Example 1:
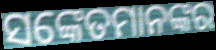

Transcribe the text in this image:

ସଙ୍କେତମାନଙ୍କର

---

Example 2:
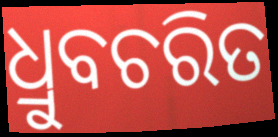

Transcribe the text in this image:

ଧ୍ରୁବଚରିତ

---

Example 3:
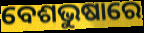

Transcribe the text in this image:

ବେଶଭୁଷାରେ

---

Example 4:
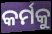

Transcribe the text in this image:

କର୍ମକୁ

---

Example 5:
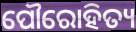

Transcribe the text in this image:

ପୌରୋହିତ୍ୟ